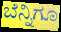
ಬೆನ್ನಿಗೂ